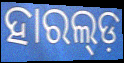
ହାରଲ୍ଡ଼